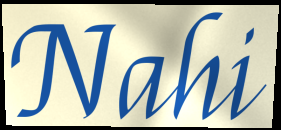
Nahi